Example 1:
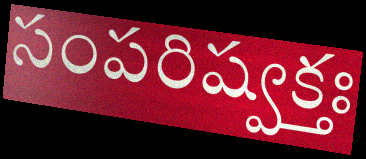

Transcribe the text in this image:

సంపరిష్వక్తః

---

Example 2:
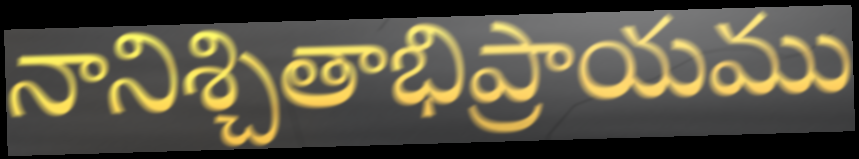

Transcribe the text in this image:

నానిశ్చితాభిప్రాయము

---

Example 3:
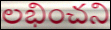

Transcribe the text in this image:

లభించని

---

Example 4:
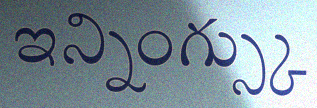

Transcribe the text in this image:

ఇన్నింగ్స్కు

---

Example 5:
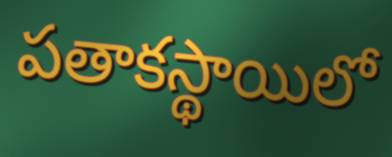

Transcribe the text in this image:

పతాకస్థాయిలో